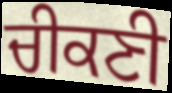
ਚੀਕਣੀ